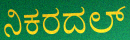
ನಿಕರದಲ್